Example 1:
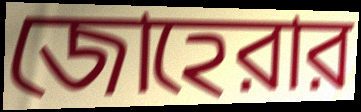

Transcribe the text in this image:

জোহেরার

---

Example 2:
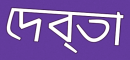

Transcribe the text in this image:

দেব্‌তা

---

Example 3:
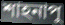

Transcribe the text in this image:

শাহনাপু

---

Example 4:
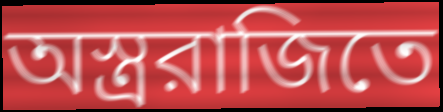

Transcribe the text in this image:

অস্ত্ররাজিতে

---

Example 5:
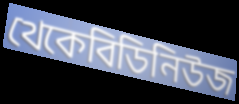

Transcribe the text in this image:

থেকেবিডিনিউজ